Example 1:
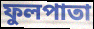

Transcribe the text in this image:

ফুলপাতা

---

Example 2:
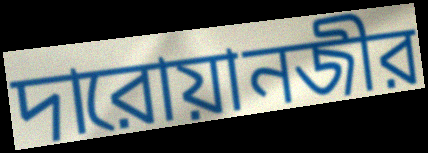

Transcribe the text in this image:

দারোয়ানজীর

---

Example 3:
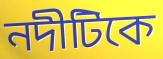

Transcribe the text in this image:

নদীটিকে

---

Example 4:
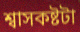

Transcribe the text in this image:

শ্বাসকষ্টটা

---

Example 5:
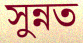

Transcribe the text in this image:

সুন্নত